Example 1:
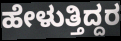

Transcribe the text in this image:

ಹೇಳುತ್ತಿದ್ದರ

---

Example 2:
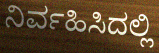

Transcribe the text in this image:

ನಿರ್ವಹಿಸಿದಲ್ಲಿ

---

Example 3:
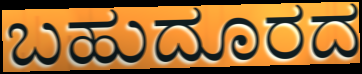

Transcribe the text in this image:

ಬಹುದೂರದ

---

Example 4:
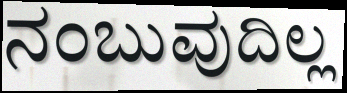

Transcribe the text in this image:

ನಂಬುವುದಿಲ್ಲ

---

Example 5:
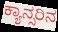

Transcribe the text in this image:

ಕ್ಯಾನ್ಸರಿನ